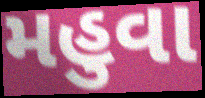
મહુવા